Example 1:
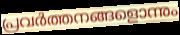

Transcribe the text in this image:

പ്രവർത്തനങ്ങളൊന്നും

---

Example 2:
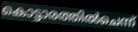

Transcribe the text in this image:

കൊട്ടാരത്തിൽചെന്ന്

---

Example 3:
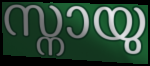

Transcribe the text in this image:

സ്നായു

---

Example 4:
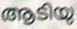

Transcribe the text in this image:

ആടിയു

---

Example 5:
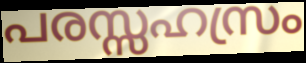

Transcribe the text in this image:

പരസ്സഹസ്രം